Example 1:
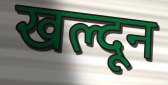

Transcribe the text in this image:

खल्दून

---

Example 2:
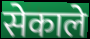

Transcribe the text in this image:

सेकाले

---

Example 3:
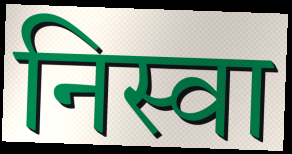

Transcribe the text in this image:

निस्वा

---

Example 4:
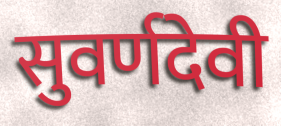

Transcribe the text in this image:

सुवर्णदेवी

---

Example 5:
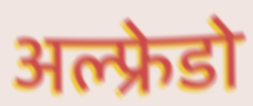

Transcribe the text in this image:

अल्फ्रेडो